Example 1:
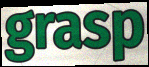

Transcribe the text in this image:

grasp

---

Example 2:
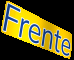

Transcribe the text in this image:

Frente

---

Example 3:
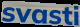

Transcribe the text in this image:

svasti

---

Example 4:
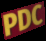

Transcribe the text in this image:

PDC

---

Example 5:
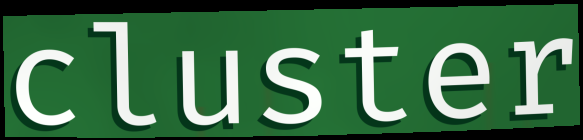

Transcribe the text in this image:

cluster